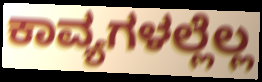
ಕಾವ್ಯಗಳಲ್ಲೆಲ್ಲ